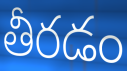
తీరడం